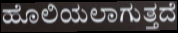
ಹೊಲಿಯಲಾಗುತ್ತದೆ